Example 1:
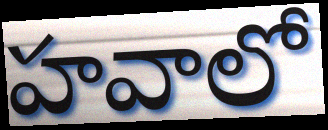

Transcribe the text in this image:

హవాలో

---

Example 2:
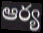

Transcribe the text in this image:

ఆర్య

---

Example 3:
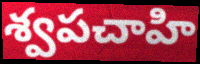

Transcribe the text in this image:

శ్వపచాహి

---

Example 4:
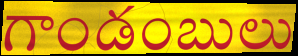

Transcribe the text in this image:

గాండంబులు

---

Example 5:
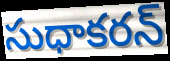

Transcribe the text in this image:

సుధాకరన్